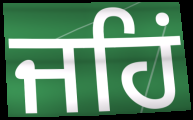
ਜਹਿਂ